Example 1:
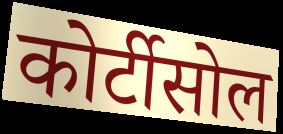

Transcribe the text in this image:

कोर्टीसोल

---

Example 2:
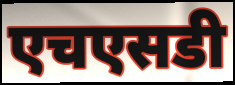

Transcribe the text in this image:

एचएसडी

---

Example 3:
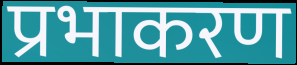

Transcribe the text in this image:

प्रभाकरण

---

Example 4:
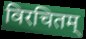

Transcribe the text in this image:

विरचितम्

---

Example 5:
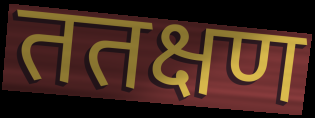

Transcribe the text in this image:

ततक्षण